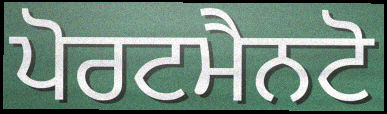
ਪੋਰਟਮੈਨਟੋ